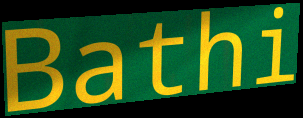
Bathi